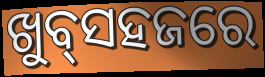
ଖୁବ୍‌ସହଜରେ